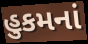
હુકમનાં